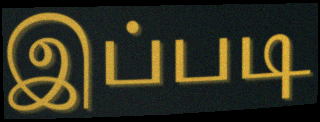
இப்படி